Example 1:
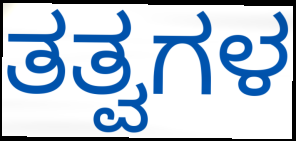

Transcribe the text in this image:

ತತ್ವಗಳ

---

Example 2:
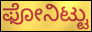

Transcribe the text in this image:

ಫೋನಿಟ್ಟು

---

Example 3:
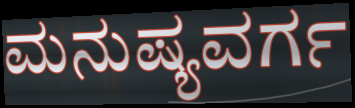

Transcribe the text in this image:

ಮನುಷ್ಯವರ್ಗ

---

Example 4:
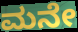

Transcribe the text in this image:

ಮನೇ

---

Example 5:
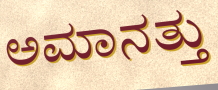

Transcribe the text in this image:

ಅಮಾನತ್ತು